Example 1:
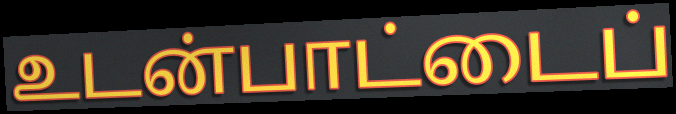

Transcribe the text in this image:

உடன்பாட்டைப்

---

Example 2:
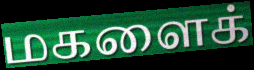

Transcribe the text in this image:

மகளைக்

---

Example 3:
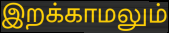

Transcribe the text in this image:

இறக்காமலும்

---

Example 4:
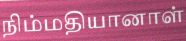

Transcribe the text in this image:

நிம்மதியானாள்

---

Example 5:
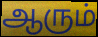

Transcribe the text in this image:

ஆரும்